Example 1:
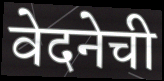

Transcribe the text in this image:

वेदनेची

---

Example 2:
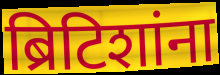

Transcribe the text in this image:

ब्रिटिशांना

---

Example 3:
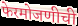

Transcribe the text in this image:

फेरमोजणीची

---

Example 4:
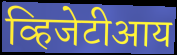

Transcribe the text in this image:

व्हिजेटीआय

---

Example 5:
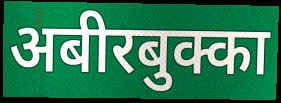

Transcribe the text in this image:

अबीरबुक्का